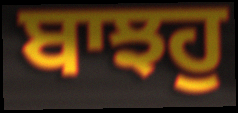
ਬਾਝਹੁ